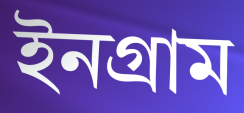
ইনগ্রাম